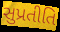
સુપ્રતીતિ